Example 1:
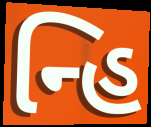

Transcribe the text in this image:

ન્હિ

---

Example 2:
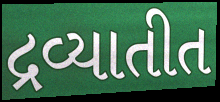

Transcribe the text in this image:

દ્રવ્યાતીત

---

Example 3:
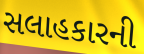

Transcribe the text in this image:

સલાહકારની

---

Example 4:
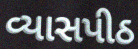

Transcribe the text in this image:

વ્યાસપીઠ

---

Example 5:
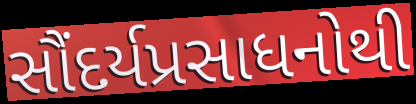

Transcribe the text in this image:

સૌંદર્યપ્રસાધનોથી